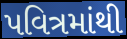
પવિત્રમાંથી